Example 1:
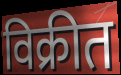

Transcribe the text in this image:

विक्रीत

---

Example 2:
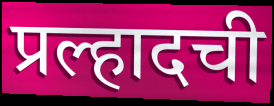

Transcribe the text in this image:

प्रल्हादची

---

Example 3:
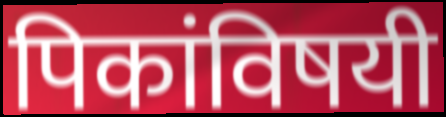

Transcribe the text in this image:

पिकांविषयी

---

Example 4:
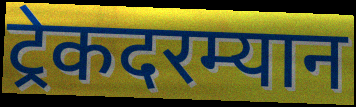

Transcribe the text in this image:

ट्रेकदरम्यान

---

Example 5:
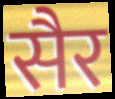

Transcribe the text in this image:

सैर